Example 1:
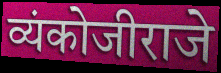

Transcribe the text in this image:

व्यंकोजीराजे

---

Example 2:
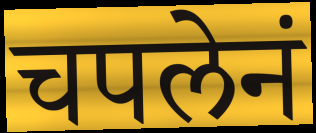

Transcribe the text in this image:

चपलेनं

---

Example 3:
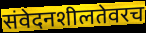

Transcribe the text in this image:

संवेदनशीलतेवरच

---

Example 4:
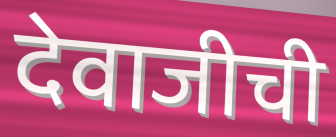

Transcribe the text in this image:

देवाजीची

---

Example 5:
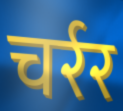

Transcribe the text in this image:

चर्रर